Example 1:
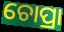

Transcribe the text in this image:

ଚୋପ୍ରା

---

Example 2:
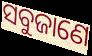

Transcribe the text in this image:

ସବୁଜାଣେ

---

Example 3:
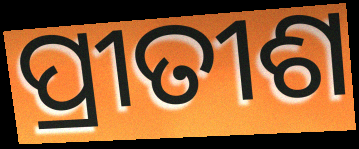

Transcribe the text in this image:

ପ୍ରୀତୀଶ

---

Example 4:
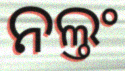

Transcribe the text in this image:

ନଲ୍ତଂ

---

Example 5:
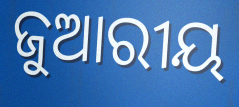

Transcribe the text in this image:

ଜୁଆରୀୟ